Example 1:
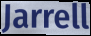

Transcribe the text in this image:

Jarrell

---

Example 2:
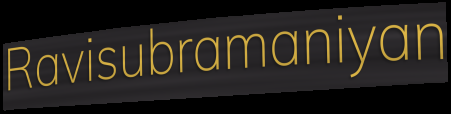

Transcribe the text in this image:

Ravisubramaniyan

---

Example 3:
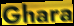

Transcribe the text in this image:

Ghara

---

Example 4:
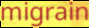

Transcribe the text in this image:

migrain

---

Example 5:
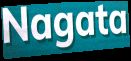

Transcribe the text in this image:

Nagata